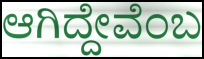
ಆಗಿದ್ದೇವೆಂಬ